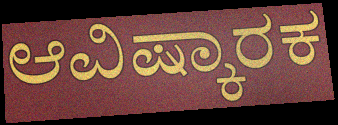
ಆವಿಷ್ಕಾರಕ